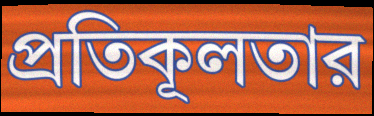
প্রতিকূলতার